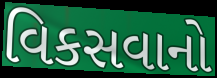
વિકસવાનો